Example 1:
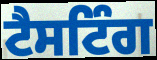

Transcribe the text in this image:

ਟੈਸਟਿੰਗ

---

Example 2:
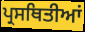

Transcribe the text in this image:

ਪ੍ਰਸਥਿਤੀਆਂ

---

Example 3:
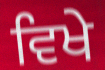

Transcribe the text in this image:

ਵਿਖੇ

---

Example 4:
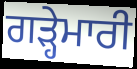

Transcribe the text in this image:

ਗੜ੍ਹੇਮਾਰੀ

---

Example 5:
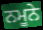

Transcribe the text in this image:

ਨਮੂਨੇ